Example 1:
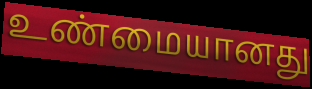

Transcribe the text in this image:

உண்மையானது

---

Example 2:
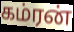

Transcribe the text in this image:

கம்ரன்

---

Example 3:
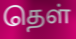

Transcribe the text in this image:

தெள்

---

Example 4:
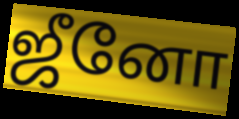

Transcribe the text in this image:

ஜீனோ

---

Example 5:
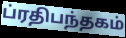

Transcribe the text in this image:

ப்ரதிபந்தகம்